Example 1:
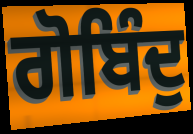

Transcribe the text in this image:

ਗੋਬਿੰਦੁ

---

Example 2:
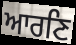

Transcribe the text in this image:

ਆਰਣਿ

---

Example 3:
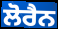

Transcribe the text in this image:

ਲੋਰੈਨ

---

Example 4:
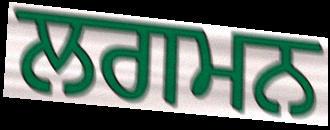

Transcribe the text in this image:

ਲਗਮਨ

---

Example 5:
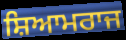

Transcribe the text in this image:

ਸ਼ਿਆਮਰਾਜ